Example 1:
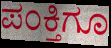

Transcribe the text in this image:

ಪಂಕ್ತಿಗೂ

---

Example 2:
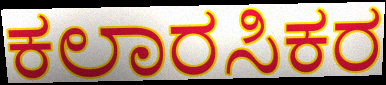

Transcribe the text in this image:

ಕಲಾರಸಿಕರ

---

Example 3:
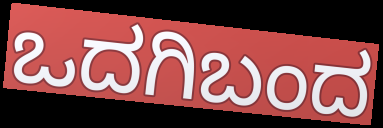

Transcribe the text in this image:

ಒದಗಿಬಂದ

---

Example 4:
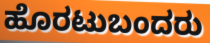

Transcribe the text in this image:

ಹೊರಟುಬಂದರು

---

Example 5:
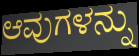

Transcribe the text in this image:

ಆವುಗಳನ್ನು